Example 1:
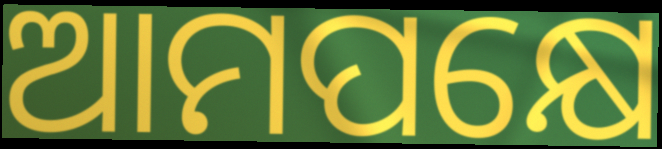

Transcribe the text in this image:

ଆମପକ୍ଷେ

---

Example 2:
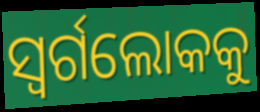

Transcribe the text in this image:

ସ୍ବର୍ଗଲୋକକୁ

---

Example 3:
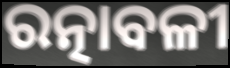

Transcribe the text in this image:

ରତ୍ନାବଳୀ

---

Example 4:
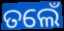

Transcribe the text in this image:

ତଲେଁ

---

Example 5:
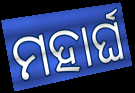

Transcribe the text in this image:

ମହାର୍ଘ